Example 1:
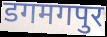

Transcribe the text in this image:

डगमगपुर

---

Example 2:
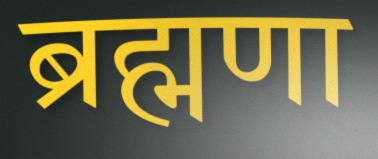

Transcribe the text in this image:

ब्रह्मणा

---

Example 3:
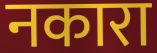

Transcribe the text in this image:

नकारा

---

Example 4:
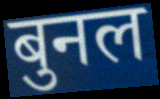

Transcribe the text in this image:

बुनल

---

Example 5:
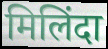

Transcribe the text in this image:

मिलिंदा